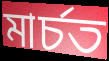
মাৰ্চত